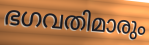
ഭഗവതിമാരും